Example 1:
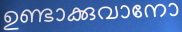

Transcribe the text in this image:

ഉണ്ടാക്കുവാനോ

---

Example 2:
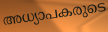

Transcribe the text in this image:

അധ്യാപകരുടെ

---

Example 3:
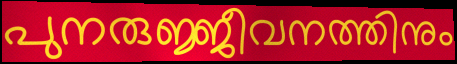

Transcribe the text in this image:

പുനരുജ്ജീവനത്തിനും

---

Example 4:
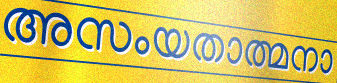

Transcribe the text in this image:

അസംയതാത്മനാ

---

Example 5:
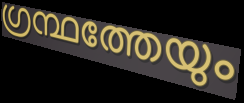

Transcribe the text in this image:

ഗ്രന്ഥത്തേയും